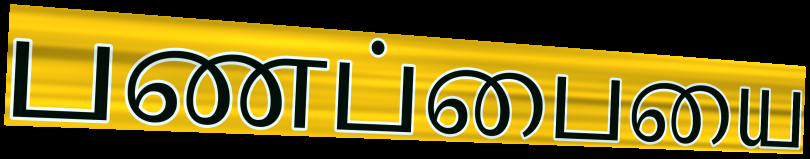
பணப்பையை